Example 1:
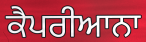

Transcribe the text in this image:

ਕੈਪਰੀਆਨਾ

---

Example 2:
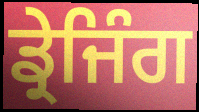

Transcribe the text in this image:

ਡ੍ਰੇਜਿੰਗ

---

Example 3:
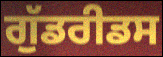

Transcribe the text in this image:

ਗੁੱਡਰੀਡਸ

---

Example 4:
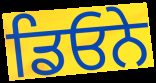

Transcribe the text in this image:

ਡਿਓਨੇ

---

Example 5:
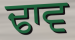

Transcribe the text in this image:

ਢਾਵ